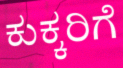
ಕುಕ್ಕರಿಗೆ